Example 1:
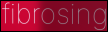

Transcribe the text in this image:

fibrosing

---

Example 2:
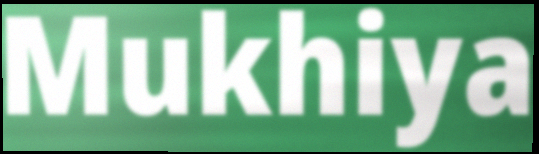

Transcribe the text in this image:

Mukhiya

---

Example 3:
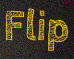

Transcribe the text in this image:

Flip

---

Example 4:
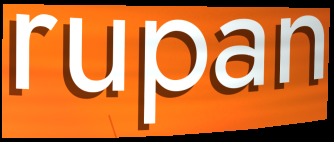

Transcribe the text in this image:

rupan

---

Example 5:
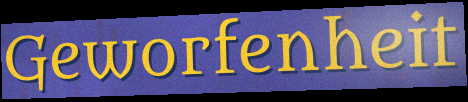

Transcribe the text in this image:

Geworfenheit